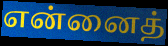
என்னைத்